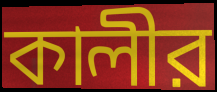
কালীর